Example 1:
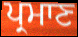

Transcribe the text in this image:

ਪ੍ਰਮਾਣ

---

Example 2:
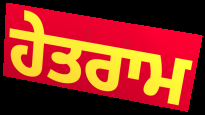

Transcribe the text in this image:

ਹੇਤਰਾਮ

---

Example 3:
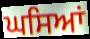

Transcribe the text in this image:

ਘਸਿਆਂ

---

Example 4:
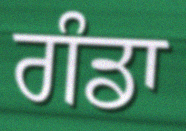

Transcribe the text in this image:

ਗੰਡਾ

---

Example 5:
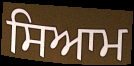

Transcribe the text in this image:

ਸਿਆਮ